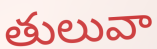
తులువా